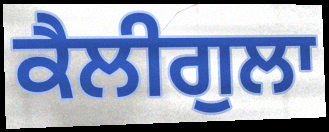
ਕੈਲੀਗੁਲਾ